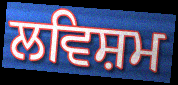
ਲਵਿਸ਼ਮ